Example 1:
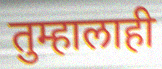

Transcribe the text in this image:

तुम्हालाही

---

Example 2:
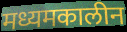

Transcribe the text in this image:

मध्यमकालीन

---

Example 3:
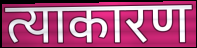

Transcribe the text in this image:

त्याकारण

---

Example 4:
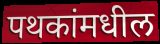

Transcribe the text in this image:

पथकांमधील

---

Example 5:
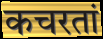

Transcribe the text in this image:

कचरतां